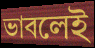
ভাবলেই